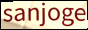
sanjoge